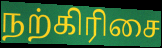
நற்கிரிசை